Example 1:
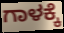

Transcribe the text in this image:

ಗಾಳಕ್ಕೆ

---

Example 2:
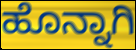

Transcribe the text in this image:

ಹೊನ್ನಾಗಿ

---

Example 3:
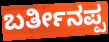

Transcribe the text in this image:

ಬರ್ತೀನಪ್ಪ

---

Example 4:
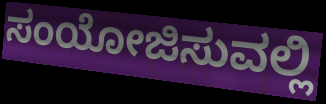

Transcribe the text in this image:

ಸಂಯೋಜಿಸುವಲ್ಲಿ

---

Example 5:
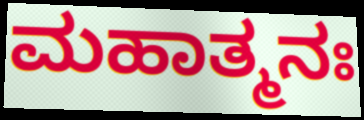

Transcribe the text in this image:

ಮಹಾತ್ಮನಃ